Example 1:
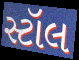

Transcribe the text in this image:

સ્ટૉલ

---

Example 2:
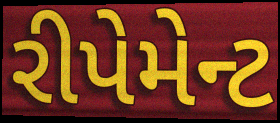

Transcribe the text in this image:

રીપેમેન્ટ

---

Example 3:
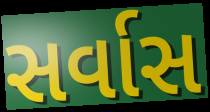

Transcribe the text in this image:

સર્વાસ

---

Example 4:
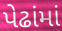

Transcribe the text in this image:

પેઢાંમાં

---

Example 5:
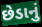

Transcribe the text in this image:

છેડાનું